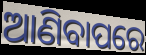
ଆଣିବାପରେ